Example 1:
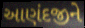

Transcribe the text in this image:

આણંદજીને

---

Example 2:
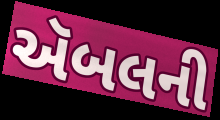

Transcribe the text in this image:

ઍબલની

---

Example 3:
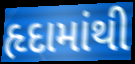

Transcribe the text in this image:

હૃદામાંથી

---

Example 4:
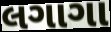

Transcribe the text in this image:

લગાગા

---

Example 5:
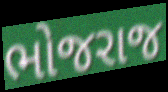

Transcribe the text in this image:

ભોજરાજ